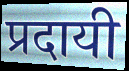
प्रदायी